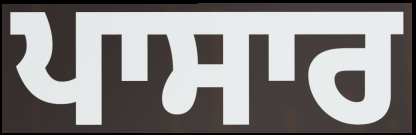
ਪਾਸਾਰ